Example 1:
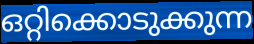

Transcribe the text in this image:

ഒറ്റിക്കൊടുക്കുന്ന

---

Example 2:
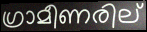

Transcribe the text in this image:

ഗ്രാമീണരില്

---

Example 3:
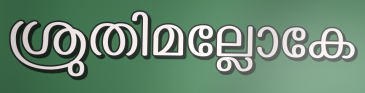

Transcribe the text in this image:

ശ്രുതിമല്ലോകേ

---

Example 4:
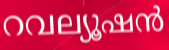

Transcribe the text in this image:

റവല്യൂഷൻ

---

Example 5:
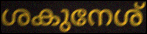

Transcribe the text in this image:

ശകുനേശ്